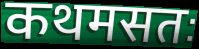
कथमसतः